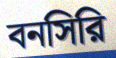
বনসিরি